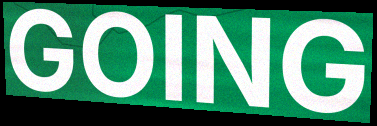
GOING